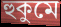
হুকুমে